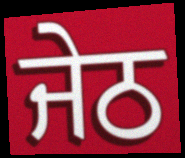
ਜੇਠ